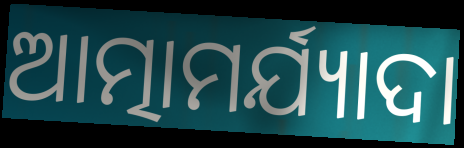
ଆତ୍ମାମର୍ଯ୍ୟାଦା